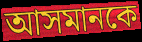
আসমানকে